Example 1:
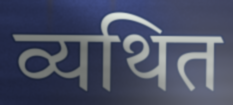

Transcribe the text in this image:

व्यथित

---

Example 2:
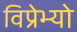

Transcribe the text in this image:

विप्रेभ्यो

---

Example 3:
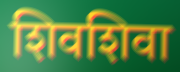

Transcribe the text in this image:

शिवशिवा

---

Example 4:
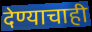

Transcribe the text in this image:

देण्याचाही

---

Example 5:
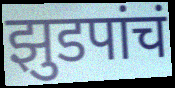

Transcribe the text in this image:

झुडपांचं